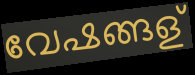
വേഷങ്ങള്